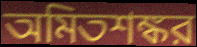
অমিতশঙ্কর